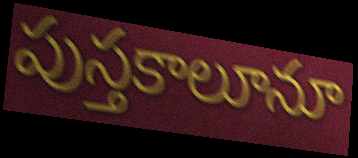
పుస్తకాలూనూ